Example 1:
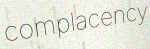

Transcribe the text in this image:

complacency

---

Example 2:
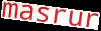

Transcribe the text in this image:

masrur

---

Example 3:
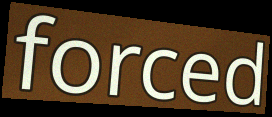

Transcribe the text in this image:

forced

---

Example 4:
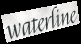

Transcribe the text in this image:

waterline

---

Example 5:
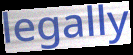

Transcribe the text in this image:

legally